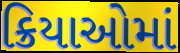
ક્રિયાઓમાં